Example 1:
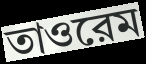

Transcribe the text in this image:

তাওরেম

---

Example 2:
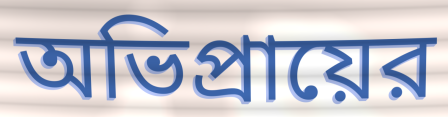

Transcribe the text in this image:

অভিপ্রায়ের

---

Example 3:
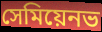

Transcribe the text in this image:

সেমিয়েনভ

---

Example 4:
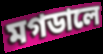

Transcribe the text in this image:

মগডালে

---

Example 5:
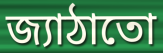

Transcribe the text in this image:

জ্যাঠাতো